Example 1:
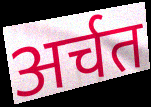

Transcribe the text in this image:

अर्चत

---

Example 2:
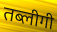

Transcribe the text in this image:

तब्लीगी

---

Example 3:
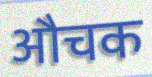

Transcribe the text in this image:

औचक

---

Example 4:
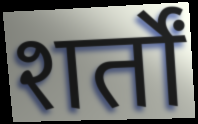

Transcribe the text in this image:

शर्तों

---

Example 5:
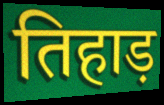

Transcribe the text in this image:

तिहाड़